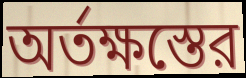
অর্তক্ষস্তের